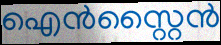
ഐൻസ്റ്റൈൻ